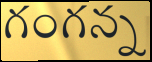
గంగన్న